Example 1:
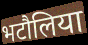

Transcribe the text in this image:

भटौलिया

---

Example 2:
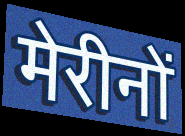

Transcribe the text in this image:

मेरीनों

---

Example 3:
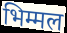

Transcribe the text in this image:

भिम्मल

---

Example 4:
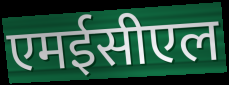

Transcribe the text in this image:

एमईसीएल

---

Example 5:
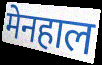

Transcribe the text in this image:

मेनहाल